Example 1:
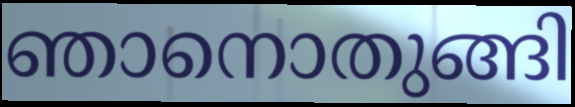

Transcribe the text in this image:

ഞാനൊതുങ്ങി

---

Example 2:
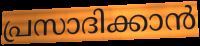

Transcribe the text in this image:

പ്രസാദിക്കാൻ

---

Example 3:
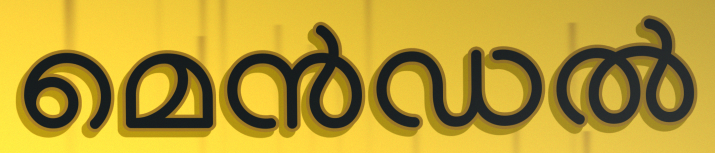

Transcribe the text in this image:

മെൻഡൽ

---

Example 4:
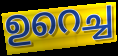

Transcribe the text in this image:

ഉറെച്ച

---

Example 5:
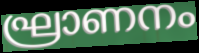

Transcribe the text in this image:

ഘ്രാണനം